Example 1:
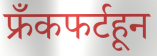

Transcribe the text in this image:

फ्रँकफर्टहून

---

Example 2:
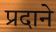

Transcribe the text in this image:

प्रदाने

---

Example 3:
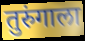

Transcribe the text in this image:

तुरुंगाला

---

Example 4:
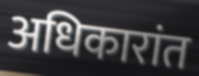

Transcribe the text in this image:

अधिकारांत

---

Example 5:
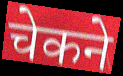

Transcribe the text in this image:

चेकने